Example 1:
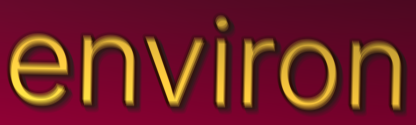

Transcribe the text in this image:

environ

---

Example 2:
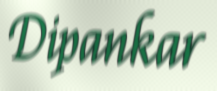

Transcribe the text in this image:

Dipankar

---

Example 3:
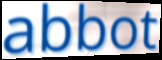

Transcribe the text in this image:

abbot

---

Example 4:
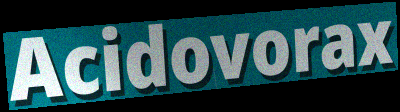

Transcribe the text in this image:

Acidovorax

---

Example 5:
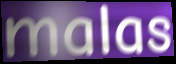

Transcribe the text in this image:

malas